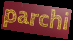
parchi